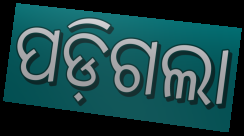
ପଡ଼ିଗଲା